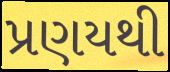
પ્રણયથી